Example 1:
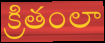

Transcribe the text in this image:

క్రితంలా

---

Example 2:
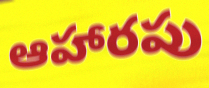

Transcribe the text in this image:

ఆహారపు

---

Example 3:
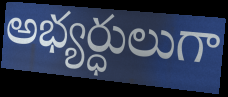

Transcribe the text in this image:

అభ్యర్ధులుగా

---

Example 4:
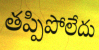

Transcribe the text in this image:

తప్పిపోలేదు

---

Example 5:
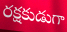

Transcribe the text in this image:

రక్షకుడుగా